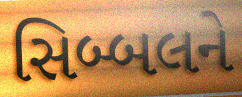
સિબ્બલને